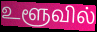
உளூவில்